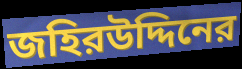
জহিরউদ্দিনের